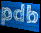
pdb